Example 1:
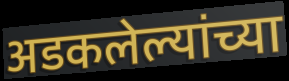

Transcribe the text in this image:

अडकलेल्यांच्या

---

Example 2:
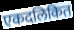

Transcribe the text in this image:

एकदलिकित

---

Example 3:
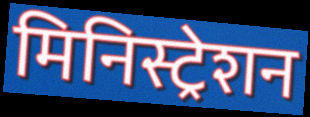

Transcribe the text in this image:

मिनिस्ट्रेशन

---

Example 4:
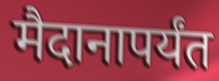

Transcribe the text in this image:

मैदानापर्यंत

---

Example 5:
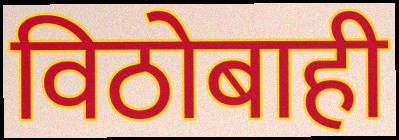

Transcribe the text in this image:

विठोबाही